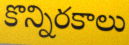
కొన్నిరకాలు